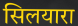
सिलयारा